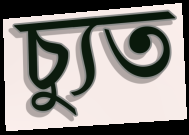
চ্যুত